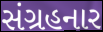
સંગ્રહનાર